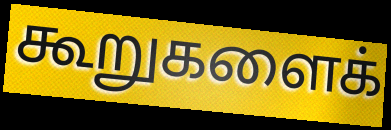
கூறுகளைக்